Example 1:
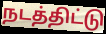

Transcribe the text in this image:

நடத்திட்டு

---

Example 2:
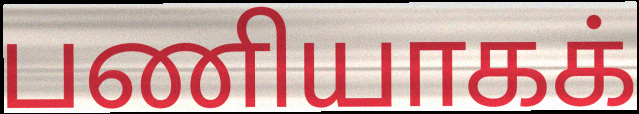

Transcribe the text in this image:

பணியாகக்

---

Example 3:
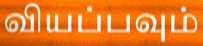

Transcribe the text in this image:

வியப்பவும்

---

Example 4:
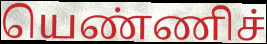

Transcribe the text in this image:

யெண்ணிச்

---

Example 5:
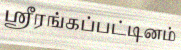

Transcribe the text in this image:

ஸ்ரீரங்கப்பட்டினம்